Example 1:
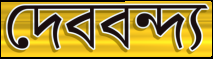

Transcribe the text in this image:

দেববন্দ্য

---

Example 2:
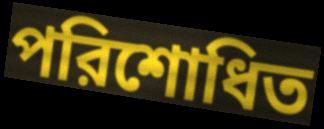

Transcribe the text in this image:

পরিশোধিত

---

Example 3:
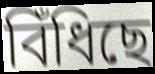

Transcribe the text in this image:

বিঁধিছে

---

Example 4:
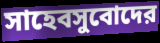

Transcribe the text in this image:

সাহেবসুবোদের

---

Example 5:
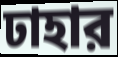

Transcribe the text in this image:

ঢাহার